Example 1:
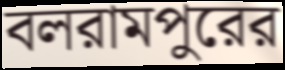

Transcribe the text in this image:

বলরামপুরের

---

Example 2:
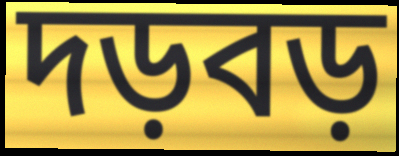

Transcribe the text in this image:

দড়বড়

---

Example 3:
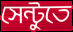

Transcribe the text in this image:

সেন্টুতে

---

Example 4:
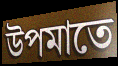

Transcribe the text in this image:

উপমাতে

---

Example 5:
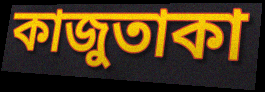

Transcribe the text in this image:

কাজুতাকা